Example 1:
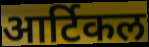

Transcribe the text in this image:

आर्टिकल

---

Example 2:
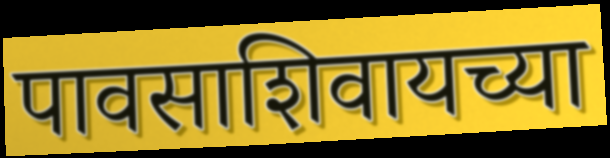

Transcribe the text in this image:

पावसाशिवायच्या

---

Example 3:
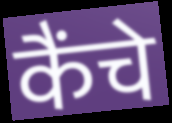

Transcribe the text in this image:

कैंचे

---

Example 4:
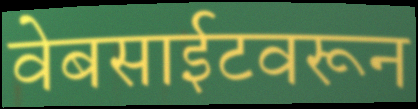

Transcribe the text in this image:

वेबसाईटवरून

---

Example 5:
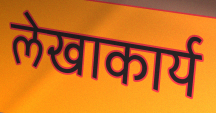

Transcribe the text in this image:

लेखाकार्य